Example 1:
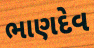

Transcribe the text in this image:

ભાણદેવ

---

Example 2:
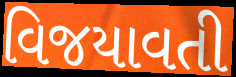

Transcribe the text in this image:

વિજયાવતી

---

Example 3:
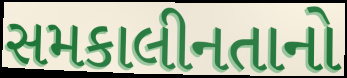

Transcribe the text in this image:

સમકાલીનતાનો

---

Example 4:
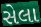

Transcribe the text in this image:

સેલા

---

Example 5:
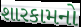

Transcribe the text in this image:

શારકામનો